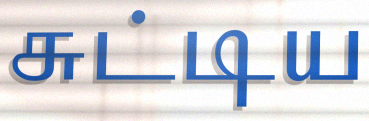
சுட்டிய